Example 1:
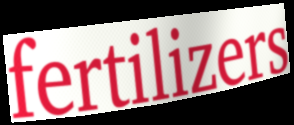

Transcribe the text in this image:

fertilizers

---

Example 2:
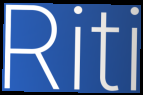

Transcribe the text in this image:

Riti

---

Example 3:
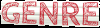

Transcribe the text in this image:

GENRE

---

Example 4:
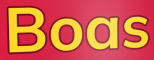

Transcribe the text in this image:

Boas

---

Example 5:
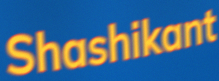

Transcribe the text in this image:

Shashikant